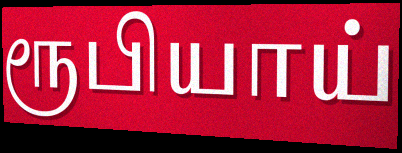
ரூபியாய்